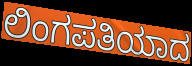
ಲಿಂಗಪತಿಯಾದ